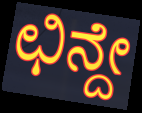
ಛಿನ್ದೇ